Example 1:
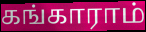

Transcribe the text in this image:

கங்காராம்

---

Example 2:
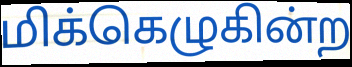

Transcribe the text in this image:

மிக்கெழுகின்ற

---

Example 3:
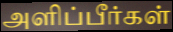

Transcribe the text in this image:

அளிப்பீர்கள்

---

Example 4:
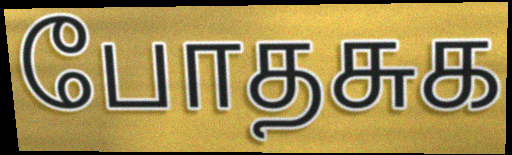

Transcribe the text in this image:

போதசுக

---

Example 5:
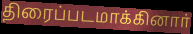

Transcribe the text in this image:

திரைப்படமாக்கினார்